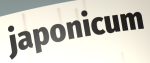
japonicum